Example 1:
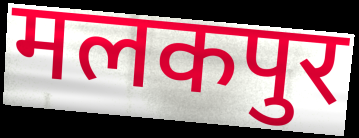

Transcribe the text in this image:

मलकपुर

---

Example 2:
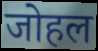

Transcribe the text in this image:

जोहल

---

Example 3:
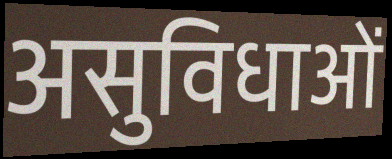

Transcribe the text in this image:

असुविधाओं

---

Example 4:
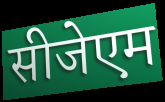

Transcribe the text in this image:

सीजेएम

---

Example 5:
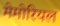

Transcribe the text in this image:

मेमोरियल